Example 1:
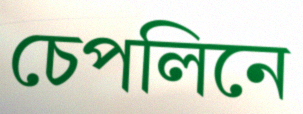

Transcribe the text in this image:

চেপলিনে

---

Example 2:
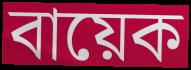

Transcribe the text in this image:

বায়েক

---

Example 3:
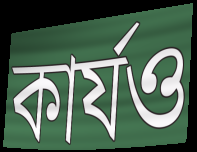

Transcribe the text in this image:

কাৰ্যও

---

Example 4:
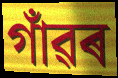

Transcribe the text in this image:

গাঁৱৰ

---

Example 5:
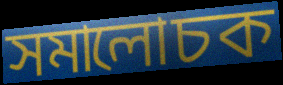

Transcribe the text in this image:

সমালোচক